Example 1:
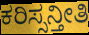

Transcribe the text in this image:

ಕರಿಸ್ಸನ್ತೀತಿ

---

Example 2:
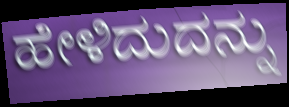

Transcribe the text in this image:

ಹೇಳಿದುದನ್ನು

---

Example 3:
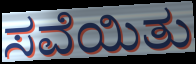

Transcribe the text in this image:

ಸವೆಯಿತು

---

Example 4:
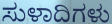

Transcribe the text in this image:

ಸುಳಾದಿಗಳು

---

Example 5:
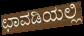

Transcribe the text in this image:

ಛಾವಡಿಯಲ್ಲಿ